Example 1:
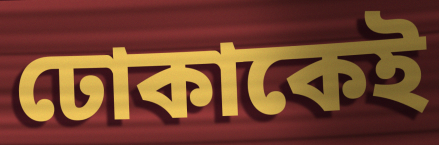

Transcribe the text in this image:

ঢোকাকেই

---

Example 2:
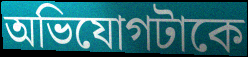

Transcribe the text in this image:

অভিযোগটাকে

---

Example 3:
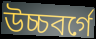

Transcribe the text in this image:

উচ্চবর্গে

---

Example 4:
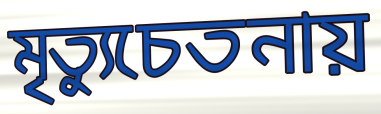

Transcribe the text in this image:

মৃত্যুচেতনায়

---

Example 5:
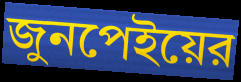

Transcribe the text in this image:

জুনপেইয়ের